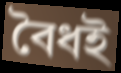
বৈধই